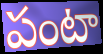
పంటా